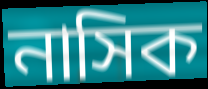
নাসিক